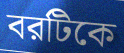
বরটিকে